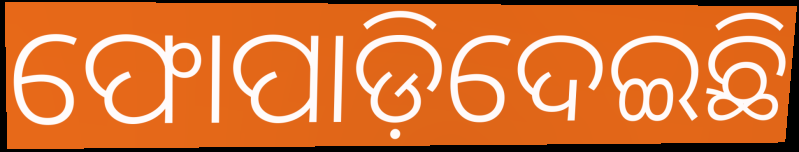
ଫୋପାଡ଼ିଦେଇଛି